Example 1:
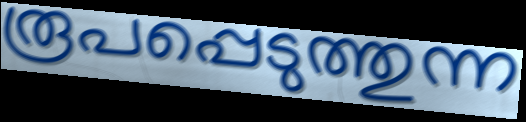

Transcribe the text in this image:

രൂപപ്പെടുത്തുന്ന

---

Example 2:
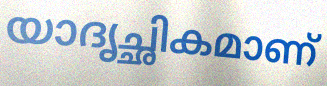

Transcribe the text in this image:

യാദൃച്ഛികമാണ്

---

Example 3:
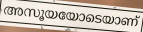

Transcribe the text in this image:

അസൂയയോടെയാണ്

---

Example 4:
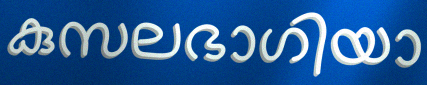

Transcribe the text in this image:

കുസലഭാഗിയാ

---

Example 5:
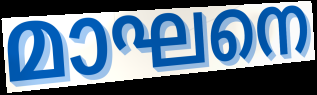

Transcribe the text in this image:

മാഘനെ